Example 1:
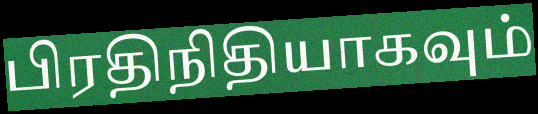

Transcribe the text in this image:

பிரதிநிதியாகவும்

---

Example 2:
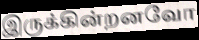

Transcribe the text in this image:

இருக்கின்றனவோ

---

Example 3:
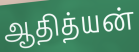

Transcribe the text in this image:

ஆதித்யன்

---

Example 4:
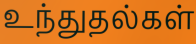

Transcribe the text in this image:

உந்துதல்கள்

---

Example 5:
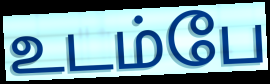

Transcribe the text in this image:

உடம்பே